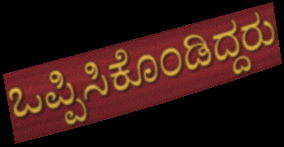
ಒಪ್ಪಿಸಿಕೊಂಡಿದ್ದರು